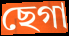
ছেগা